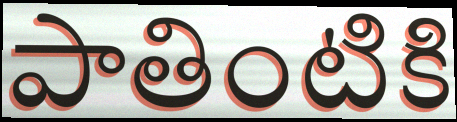
పాతింటికి